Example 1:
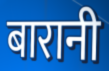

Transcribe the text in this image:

बारानी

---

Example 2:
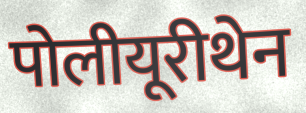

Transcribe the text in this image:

पोलीयूरीथेन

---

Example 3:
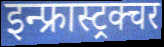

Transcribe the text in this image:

इन्फ्रास्ट्रक्चर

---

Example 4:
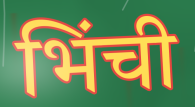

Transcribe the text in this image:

भिंची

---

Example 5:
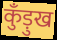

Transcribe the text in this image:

कुँड़ुख